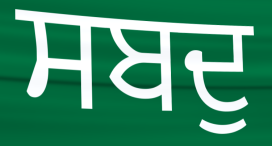
ਸਬਦੁ